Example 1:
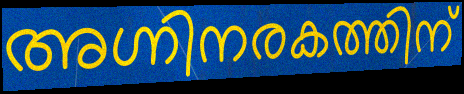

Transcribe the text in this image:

അഗ്നിനരകത്തിന്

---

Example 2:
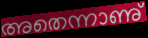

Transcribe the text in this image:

അതെന്നാണു്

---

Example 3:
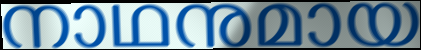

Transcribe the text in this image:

നാഥനുമായ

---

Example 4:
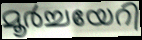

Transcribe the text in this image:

മൂർച്ചയേറി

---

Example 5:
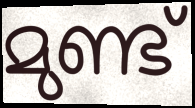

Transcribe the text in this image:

മുണ്ട്